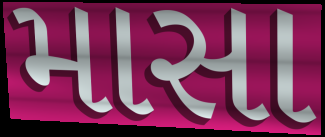
માસા